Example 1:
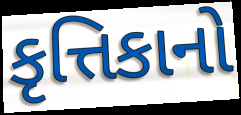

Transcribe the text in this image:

કૃત્તિકાનો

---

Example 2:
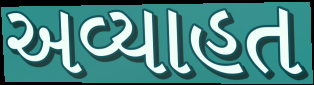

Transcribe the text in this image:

અવ્યાહત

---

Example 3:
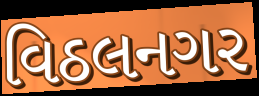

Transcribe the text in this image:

વિઠલનગર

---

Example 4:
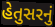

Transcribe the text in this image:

હેતુસરનું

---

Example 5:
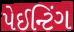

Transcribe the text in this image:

પેઈન્ટિંગ